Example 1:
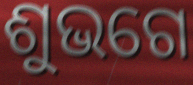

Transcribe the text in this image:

ଶୁଭଗେ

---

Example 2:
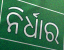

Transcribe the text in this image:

ନିର୍ଧାର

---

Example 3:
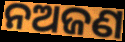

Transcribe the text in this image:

ନଅଜଣ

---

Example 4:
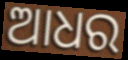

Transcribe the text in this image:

ଆଧର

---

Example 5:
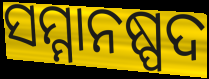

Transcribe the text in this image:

ସମ୍ମାନଷ୍ପଦ